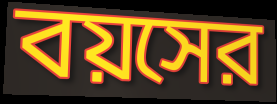
বয়সের